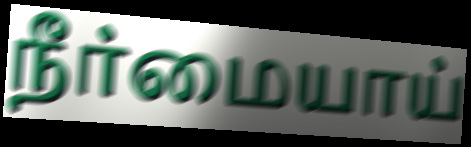
நீர்மையாய்